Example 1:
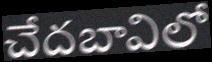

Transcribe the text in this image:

చేదబావిలో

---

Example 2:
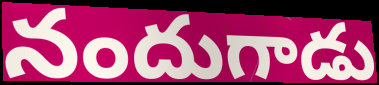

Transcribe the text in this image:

నందుగాడు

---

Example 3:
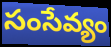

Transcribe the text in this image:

సంసేవ్యం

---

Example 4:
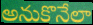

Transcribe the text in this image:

అనుకొనేలా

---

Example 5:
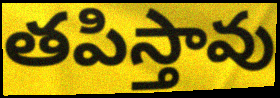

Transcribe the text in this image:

తపిస్తావు